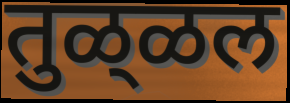
तुळ्‌ळल